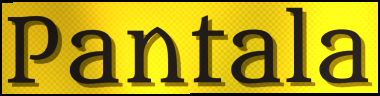
Pantala